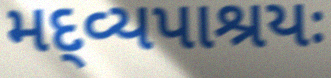
મદ્વ્યપાશ્રયઃ